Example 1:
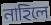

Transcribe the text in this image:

নাহিলে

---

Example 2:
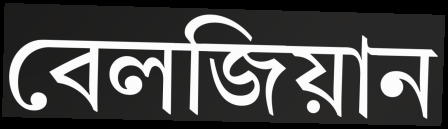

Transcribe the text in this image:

বেলজিয়ান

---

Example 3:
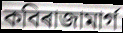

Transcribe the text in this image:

কবিৰাজামাৰ্গ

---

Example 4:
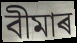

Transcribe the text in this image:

বীমাৰ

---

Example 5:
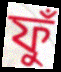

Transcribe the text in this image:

ফুঁ